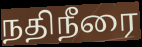
நதிநீரை